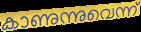
കാണുന്നുവെന്ന്